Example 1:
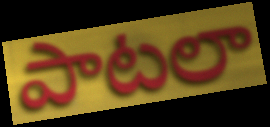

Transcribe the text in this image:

పాటలా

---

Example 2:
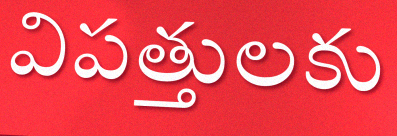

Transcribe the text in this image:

విపత్తులకు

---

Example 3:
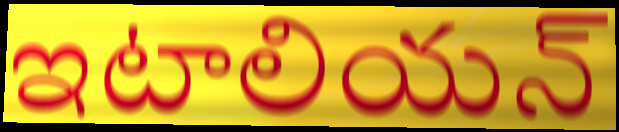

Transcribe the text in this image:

ఇటాలియన్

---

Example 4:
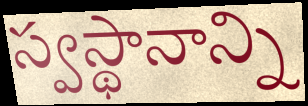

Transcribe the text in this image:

స్వస్థానాన్ని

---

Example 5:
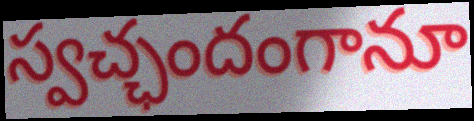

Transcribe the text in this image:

స్వచ్ఛందంగానూ